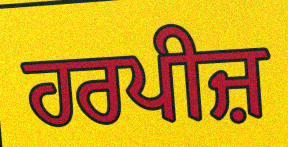
ਹਰਪੀਜ਼